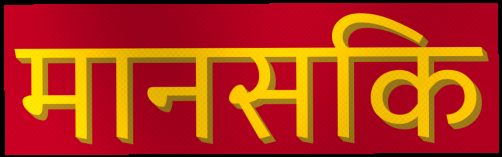
मानसकि